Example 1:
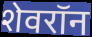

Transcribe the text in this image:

शेवरॉन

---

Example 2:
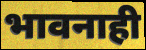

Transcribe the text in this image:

भावनाही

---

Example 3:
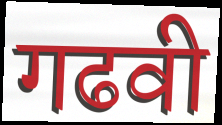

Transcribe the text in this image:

गढवी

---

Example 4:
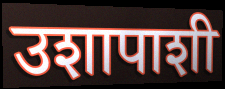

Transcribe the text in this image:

उशापाशी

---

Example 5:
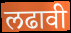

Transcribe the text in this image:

लढावी